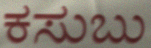
ಕಸುಬು